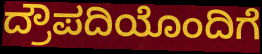
ದ್ರೌಪದಿಯೊಂದಿಗೆ